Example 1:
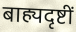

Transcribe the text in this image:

बाह्यदृष्टीं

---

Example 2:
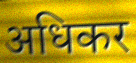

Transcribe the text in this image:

अधिकर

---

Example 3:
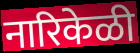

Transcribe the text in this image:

नारिकेळी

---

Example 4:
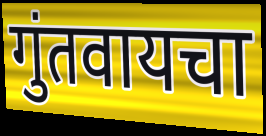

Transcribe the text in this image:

गुंतवायचा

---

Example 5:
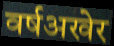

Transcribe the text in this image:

वर्षअखेर